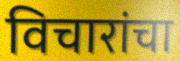
विचारांचा